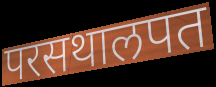
परसथालपत